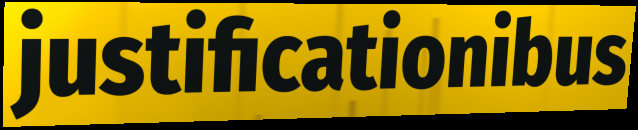
justificationibus